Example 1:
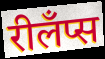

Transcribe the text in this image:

रीलँप्स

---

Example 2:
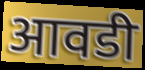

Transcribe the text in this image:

आवडी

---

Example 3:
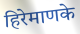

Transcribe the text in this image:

हिरेमाणके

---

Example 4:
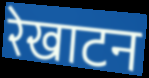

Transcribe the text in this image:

रेखाटन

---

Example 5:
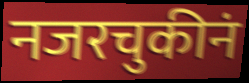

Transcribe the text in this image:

नजरचुकीनं